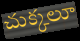
చుక్కలూ